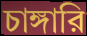
চাঙ্গারি